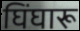
घिंघारू